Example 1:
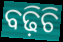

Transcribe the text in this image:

ବଢ଼ିଚି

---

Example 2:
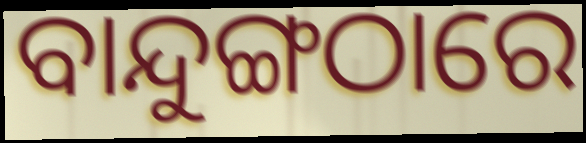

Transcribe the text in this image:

ବାନ୍ଦୁଙ୍ଗଠାରେ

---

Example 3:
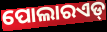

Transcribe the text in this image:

ପୋଲାରଏଡ୍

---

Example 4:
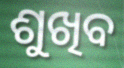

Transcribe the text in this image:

ଶୁଖିବ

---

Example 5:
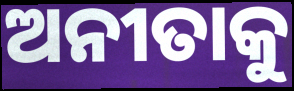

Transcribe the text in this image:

ଅନୀତାକୁ